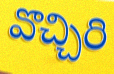
వొచ్చిరి